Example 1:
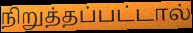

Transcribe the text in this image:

நிறுத்தப்பட்டால்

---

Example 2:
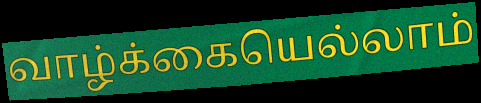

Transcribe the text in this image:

வாழ்க்கையெல்லாம்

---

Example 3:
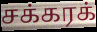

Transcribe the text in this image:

சக்கரக்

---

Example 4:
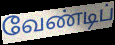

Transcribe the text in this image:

வேண்டிப்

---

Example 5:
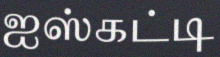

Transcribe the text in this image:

ஐஸ்கட்டி